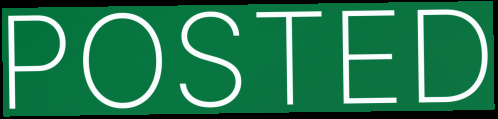
POSTED